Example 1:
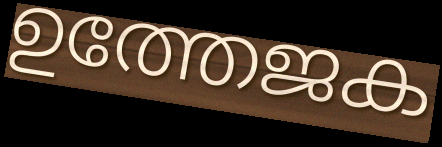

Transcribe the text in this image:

ഉത്തേജക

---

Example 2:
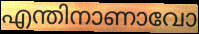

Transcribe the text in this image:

എന്തിനാണാവോ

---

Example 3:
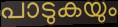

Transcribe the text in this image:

പാടുകയും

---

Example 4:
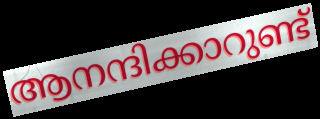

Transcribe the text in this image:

ആനന്ദിക്കാറുണ്ട്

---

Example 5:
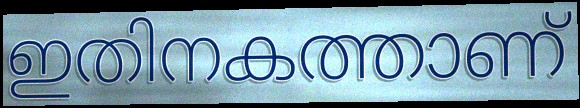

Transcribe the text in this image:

ഇതിനകത്താണ്